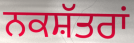
ਨਕਸ਼ੱਤਰਾਂ